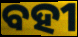
ବହୀ